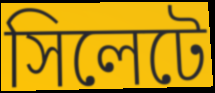
সিলেটে